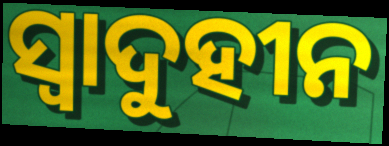
ସ୍ୱାଦୁହୀନ